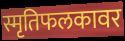
स्मृतिफलकावर